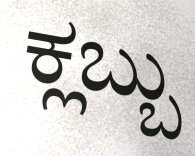
ಕ್ಲಬ್ಬು